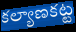
కల్యాణకట్ట